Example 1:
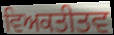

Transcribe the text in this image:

ਵਿਅਕਤੀਤਵ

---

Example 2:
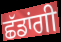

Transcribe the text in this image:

ਛੱਡਾਂਗੀ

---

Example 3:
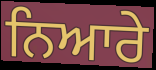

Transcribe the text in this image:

ਨਿਆਰੇ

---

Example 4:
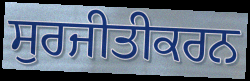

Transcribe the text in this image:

ਸੁਰਜੀਤੀਕਰਨ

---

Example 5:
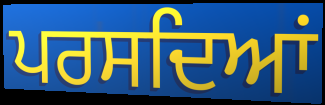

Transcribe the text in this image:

ਪਰਸਦਿਆਂ